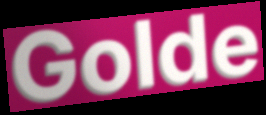
Golde